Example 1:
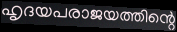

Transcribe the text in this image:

ഹൃദയപരാജയത്തിന്റെ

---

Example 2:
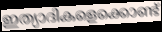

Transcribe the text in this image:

ഇത്യാദികളെക്കൊണ്ട്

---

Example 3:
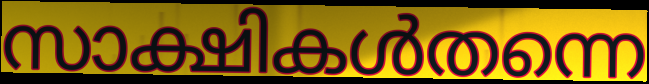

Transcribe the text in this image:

സാക്ഷികൾതന്നെ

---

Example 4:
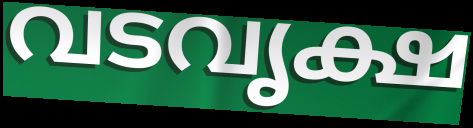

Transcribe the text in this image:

വടവൃക്ഷ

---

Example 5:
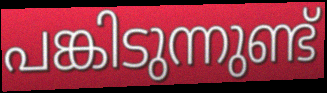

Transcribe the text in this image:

പങ്കിടുന്നുണ്ട്